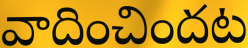
వాదించిందట